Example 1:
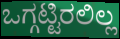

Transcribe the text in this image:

ಒಗ್ಗಟ್ಟಿರಲಿಲ್ಲ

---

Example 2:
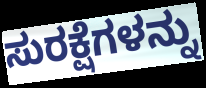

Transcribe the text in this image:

ಸುರಕ್ಷೆಗಳನ್ನು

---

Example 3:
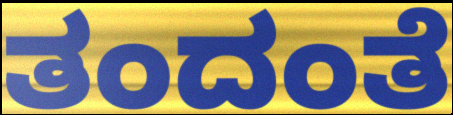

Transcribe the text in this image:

ತಂದಂತೆ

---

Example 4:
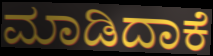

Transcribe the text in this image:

ಮಾಡಿದಾಕೆ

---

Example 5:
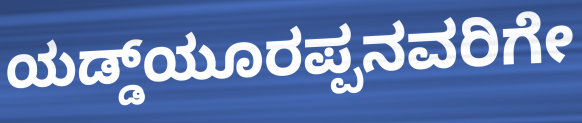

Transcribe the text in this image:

ಯಡ್ಡ್‌ಯೂರಪ್ಪನವರಿಗೇ